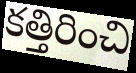
కత్తిరించి